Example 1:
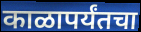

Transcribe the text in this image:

काळापर्यंतचा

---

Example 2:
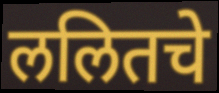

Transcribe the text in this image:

ललितचे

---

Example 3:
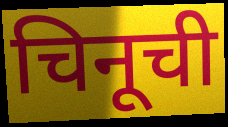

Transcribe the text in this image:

चिनूची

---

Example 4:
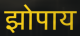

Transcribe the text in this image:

झोपाय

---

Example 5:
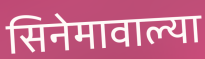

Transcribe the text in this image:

सिनेमावाल्या